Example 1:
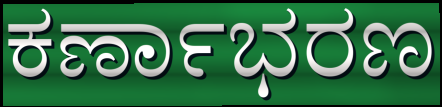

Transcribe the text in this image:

ಕರ್ಣಾಭರಣ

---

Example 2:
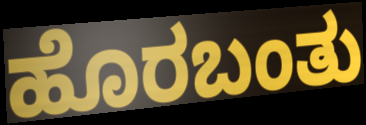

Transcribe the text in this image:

ಹೊರಬಂತು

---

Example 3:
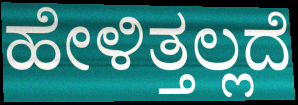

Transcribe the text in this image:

ಹೇಳಿತ್ತಲ್ಲದೆ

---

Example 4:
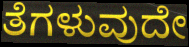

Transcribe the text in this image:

ತೆಗಳುವುದೇ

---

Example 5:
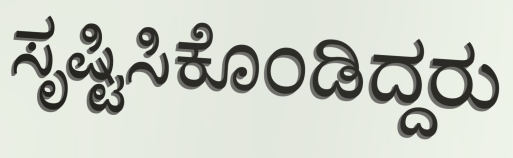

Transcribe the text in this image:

ಸೃಷ್ಟಿಸಿಕೊಂಡಿದ್ದರು